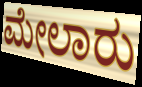
ಮೇಲಾರು